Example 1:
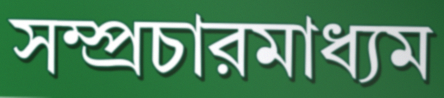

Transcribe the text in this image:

সম্প্রচারমাধ্যম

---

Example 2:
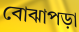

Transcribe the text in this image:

বোঝাপড়া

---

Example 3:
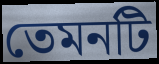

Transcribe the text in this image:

তেমনটি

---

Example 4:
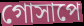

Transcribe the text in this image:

গোসাপে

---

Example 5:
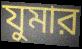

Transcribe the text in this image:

যুমার